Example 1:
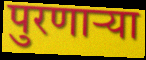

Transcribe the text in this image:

पुरणाऱ्या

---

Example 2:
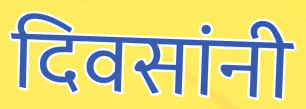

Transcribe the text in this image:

दिवसांनी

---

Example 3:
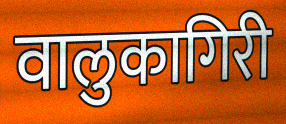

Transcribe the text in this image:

वालुकागिरी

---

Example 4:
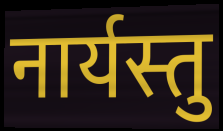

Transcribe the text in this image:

नार्यस्तु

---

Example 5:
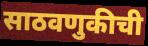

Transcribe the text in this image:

साठवणुकीची